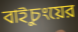
বাইচুংয়ের